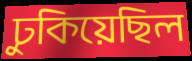
ঢুকিয়েছিল